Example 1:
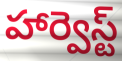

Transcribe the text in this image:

హార్వెస్ట్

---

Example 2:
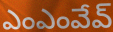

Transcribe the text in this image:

ఎంఎంవేవ్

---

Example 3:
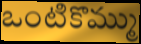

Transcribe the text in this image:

ఒంటికొమ్ము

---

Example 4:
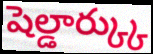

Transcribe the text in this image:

షెల్డార్క్కు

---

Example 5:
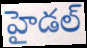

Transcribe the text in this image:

హైడల్